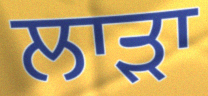
ਲਾੜਾ